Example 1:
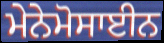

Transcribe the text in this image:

ਮੇਨੇਮੋਸਾਈਨ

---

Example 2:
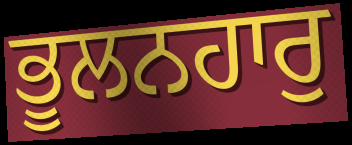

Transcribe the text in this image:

ਭੂਲਨਹਾਰੁ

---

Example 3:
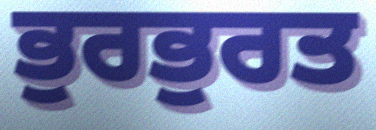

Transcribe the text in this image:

ਭੁਰਭੁਰਤ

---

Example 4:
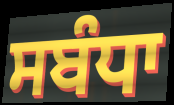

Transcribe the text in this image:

ਸਬੰਧਾ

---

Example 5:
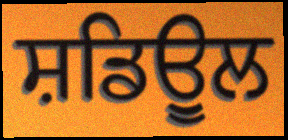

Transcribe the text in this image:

ਸ਼ਡਿਉੂਲ